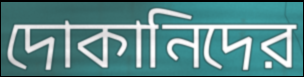
দোকানিদের